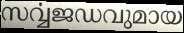
സൎവ്വജഡവുമായ